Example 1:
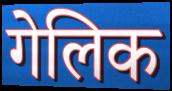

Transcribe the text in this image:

गेलिक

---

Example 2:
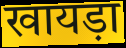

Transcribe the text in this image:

खायड़ा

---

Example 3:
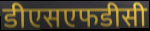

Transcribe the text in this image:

डीएसएफडीसी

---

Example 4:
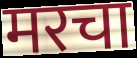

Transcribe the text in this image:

मरचा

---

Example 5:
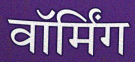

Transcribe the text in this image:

वॉर्मिंग